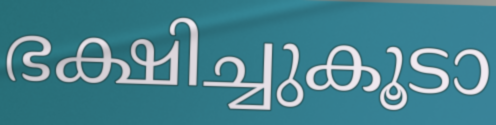
ഭക്ഷിച്ചുകൂടാ